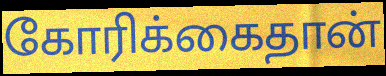
கோரிக்கைதான்